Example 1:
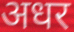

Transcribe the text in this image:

अधर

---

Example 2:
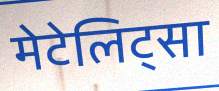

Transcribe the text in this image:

मेटेलिट्सा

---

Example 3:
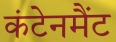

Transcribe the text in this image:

कंटेनमैंट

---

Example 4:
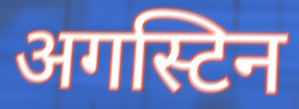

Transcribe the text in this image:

अगस्टिन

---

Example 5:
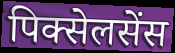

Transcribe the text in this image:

पिक्सेलसेंस